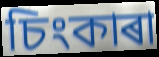
চিংকাৰা